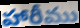
హారీము